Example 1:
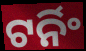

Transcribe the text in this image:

ଟର୍ନିଂ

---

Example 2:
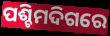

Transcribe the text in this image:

ପଶ୍ଚିମଦିଗରେ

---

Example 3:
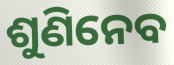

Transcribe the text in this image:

ଶୁଣିନେବ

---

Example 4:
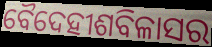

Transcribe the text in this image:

ବୈଦେହୀଶବିଳାସର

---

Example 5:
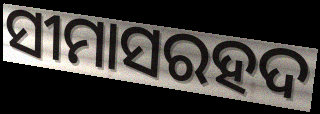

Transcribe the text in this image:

ସୀମାସରହଦ